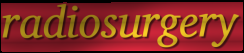
radiosurgery